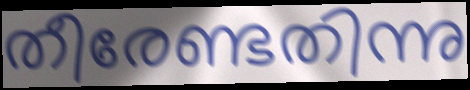
തീരേണ്ടതിന്നു